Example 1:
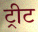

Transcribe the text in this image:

ट्रीट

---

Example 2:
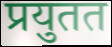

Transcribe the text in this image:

प्रयुतत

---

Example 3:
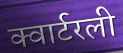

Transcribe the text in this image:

क्वार्टरली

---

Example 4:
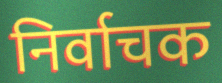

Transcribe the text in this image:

निर्वाचक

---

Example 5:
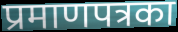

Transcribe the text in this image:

प्रमाणपत्रका